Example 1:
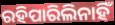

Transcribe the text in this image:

ରହିପାରିଲିନାହିଁ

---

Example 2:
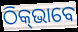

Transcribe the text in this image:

ଠିକ୍‍ଭାବେ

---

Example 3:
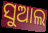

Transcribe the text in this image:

ସୁଆଲ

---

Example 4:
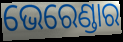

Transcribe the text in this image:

ଭେରେଣ୍ଡାର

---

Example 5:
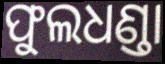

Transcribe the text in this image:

ଫୁଲଧଣ୍ଡା